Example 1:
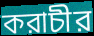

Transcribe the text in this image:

করাচীর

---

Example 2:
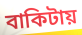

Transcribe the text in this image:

বাকিটায়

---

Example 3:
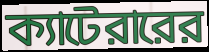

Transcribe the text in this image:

ক্যাটেরারের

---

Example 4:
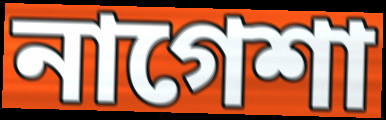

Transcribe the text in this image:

নাগেশা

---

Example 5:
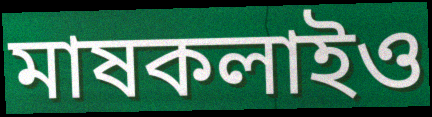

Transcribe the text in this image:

মাষকলাইও